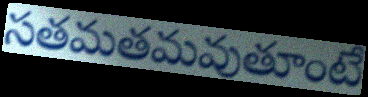
సతమతమవుతూంటే